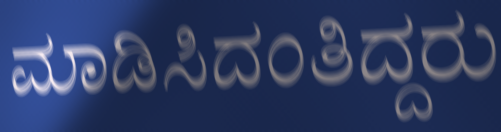
ಮಾಡಿಸಿದಂತಿದ್ದರು